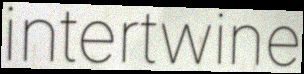
intertwine